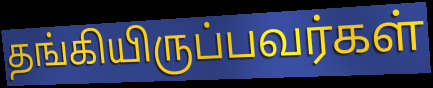
தங்கியிருப்பவர்கள்